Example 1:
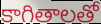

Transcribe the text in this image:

కాగితాలతో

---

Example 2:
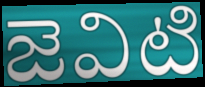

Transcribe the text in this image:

జెవిటి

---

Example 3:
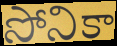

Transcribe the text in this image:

సోనికా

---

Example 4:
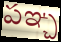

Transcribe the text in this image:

పఞ్చ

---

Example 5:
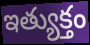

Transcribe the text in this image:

ఇత్యుక్తం